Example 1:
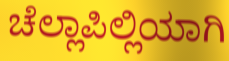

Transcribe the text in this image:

ಚೆಲ್ಲಾಪಿಲ್ಲಿಯಾಗಿ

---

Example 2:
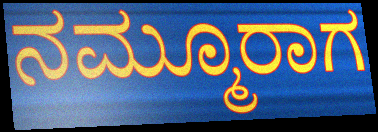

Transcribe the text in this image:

ನಮ್ಮೂರಾಗ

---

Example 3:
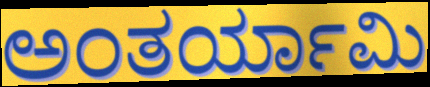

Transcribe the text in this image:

ಅಂತರ್ಯಾಮಿ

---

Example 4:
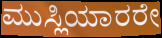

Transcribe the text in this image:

ಮುಸ್ಲಿಯಾರರೇ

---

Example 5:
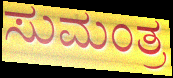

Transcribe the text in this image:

ಸುಮಂತ್ರ